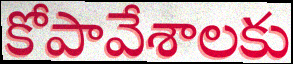
కోపావేశాలకు